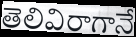
తెలివిరాగానే